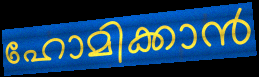
ഹോമിക്കാൻ